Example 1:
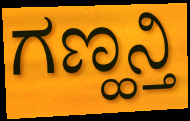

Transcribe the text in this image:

ಗಣ್ಹನ್ತಿ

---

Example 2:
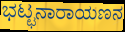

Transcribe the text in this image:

ಭಟ್ಟನಾರಾಯಣನ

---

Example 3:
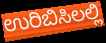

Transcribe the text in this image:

ಉರಿಬಿಸಿಲಲ್ಲಿ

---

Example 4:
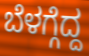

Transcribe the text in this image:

ಬೆಳಗ್ಗೆದ್ದ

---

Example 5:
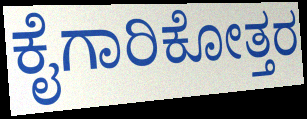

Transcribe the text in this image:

ಕೈಗಾರಿಕೋತ್ತರ